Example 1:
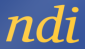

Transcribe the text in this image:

ndi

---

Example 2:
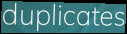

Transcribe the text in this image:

duplicates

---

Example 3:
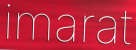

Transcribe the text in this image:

imarat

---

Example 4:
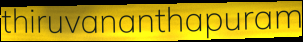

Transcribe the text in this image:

thiruvananthapuram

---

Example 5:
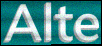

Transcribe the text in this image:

Alte